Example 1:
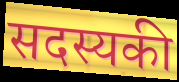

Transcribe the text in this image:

सदस्यकी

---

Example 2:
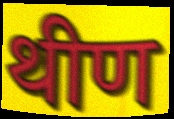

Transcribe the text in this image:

थीण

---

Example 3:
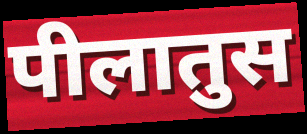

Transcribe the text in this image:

पीलातुस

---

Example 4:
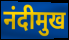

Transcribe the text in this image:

नंदीमुख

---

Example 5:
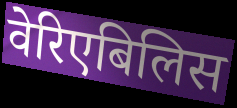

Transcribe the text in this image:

वेरिएबिलिस